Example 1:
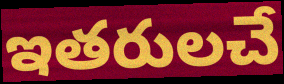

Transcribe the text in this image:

ఇతరులచే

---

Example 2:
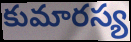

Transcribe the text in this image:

కుమారస్య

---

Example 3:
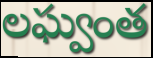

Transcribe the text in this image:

లఘ్వంత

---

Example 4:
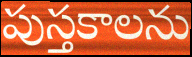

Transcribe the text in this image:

పుస్తకాలను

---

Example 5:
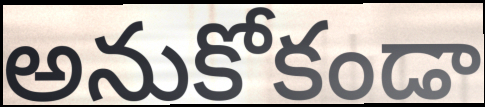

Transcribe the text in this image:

అనుకోకండా